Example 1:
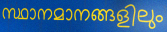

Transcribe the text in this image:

സ്ഥാനമാനങ്ങളിലും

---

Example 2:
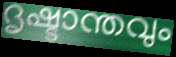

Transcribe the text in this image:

ദൃഷ്ടാന്തവും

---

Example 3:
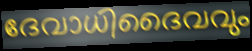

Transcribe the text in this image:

ദേവാധിദൈവവും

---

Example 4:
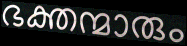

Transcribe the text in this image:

ഭക്തന്മാരും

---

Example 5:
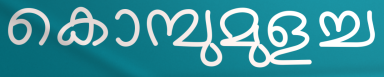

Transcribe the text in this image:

കൊമ്പുമുളച്ച